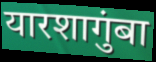
यारशागुंबा